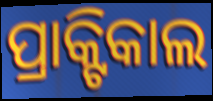
ପ୍ରାକ୍ଟିକାଲ